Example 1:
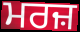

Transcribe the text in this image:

ਮਰਜ਼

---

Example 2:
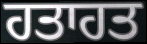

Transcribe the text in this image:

ਹਤਾਹਤ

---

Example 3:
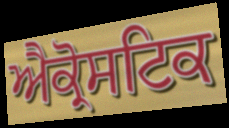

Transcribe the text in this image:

ਐਕ੍ਰੋਸਟਿਕ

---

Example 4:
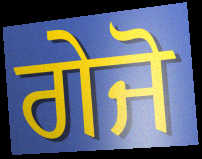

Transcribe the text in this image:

ਗੇਜੋ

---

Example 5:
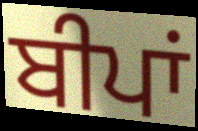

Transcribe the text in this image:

ਬੀਪਾਂ